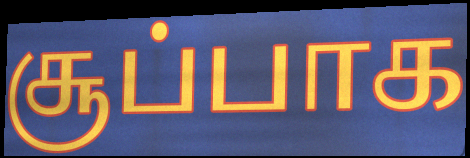
சூப்பாக